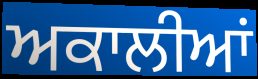
ਅਕਾਲੀਆਂ